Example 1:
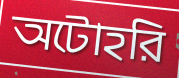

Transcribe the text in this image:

অটোহরি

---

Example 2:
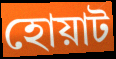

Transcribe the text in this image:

হোয়াট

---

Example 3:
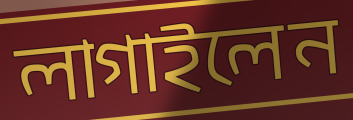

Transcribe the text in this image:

লাগাইলেন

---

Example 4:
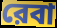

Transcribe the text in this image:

রেবা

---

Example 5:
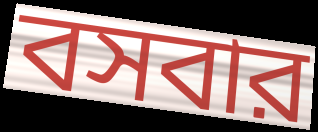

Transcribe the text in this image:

বসবার